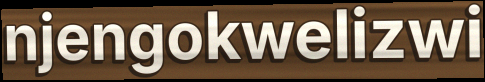
njengokwelizwi